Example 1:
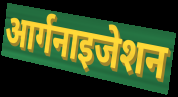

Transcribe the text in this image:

आर्गनाइजेशन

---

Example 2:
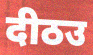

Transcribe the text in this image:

दीठउ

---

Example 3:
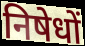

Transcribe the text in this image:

निषेधों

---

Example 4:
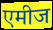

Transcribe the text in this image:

एमीज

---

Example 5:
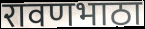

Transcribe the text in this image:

रावणभाठा